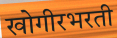
खोगीरभरती